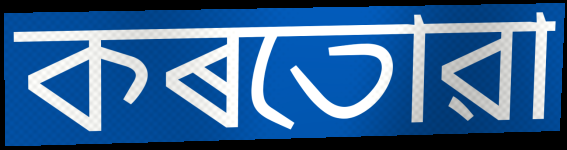
কৰতোৱা